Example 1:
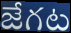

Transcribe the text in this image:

జేగట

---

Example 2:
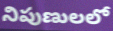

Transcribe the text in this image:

నిపుణులలో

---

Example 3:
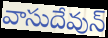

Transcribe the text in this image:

వాసుదేవున్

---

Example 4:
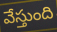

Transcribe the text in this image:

వేస్తుంది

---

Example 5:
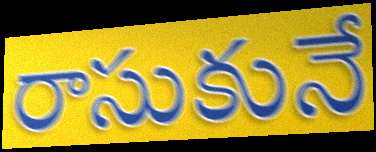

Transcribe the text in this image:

రాసుకునే